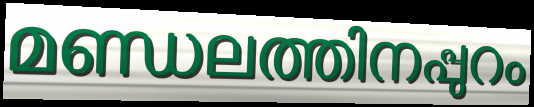
മണ്ഡലത്തിനപ്പുറം